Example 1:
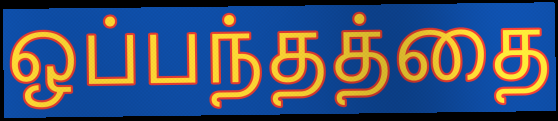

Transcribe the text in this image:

ஒப்பந்தத்தை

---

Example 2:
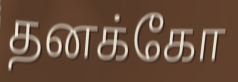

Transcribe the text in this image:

தனக்கோ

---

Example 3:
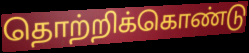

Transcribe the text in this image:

தொற்றிக்கொண்டு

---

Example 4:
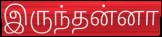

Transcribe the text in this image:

இருந்தன்னா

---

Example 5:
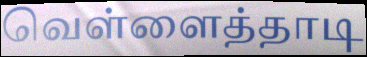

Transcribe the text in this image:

வெள்ளைத்தாடி